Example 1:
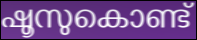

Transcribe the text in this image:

ഷൂസുകൊണ്ട്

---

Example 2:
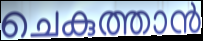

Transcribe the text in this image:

ചെകുത്താൻ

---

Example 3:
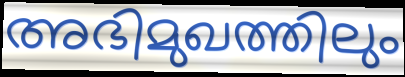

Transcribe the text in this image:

അഭിമുഖത്തിലും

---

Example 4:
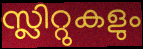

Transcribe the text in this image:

സ്ലിറ്റുകളും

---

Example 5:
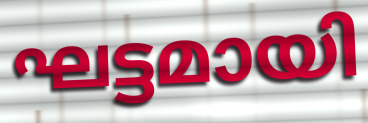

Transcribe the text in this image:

ഘട്ടമായി